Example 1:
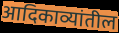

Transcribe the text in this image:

आदिकाव्यांतील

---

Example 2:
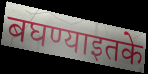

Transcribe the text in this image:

बघण्याइतके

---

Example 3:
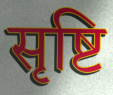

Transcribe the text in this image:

सृष्टि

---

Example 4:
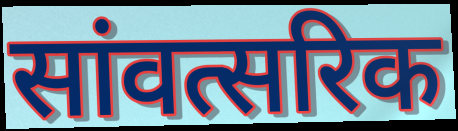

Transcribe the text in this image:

सांवत्सरिक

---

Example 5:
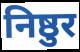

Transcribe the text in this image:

निष्ठुर